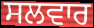
ਸਲਵਾਰ